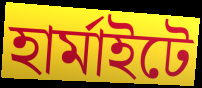
হাৰ্মাইটে